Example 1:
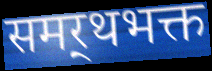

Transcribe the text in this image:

समर्थभक्त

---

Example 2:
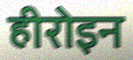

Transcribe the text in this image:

हीरोइन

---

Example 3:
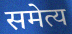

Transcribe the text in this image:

समेत्य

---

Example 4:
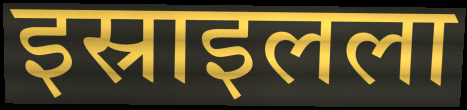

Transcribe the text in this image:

इस्राइलला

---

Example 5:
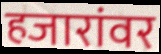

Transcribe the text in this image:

हजारांवर